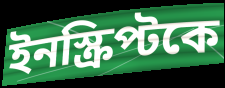
ইনস্ক্রিপ্টকে